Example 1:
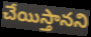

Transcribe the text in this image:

చేయిస్తానని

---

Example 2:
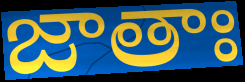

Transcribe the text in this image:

జాతాః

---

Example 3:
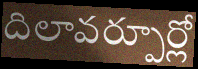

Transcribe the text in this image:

దిలావర్పూర్లో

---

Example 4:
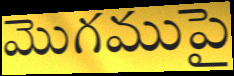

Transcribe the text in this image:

మొగముపై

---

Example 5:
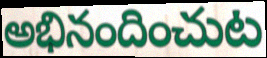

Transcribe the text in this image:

అభినందించుట